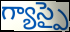
గ్యాస్పై